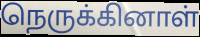
நெருக்கினாள்